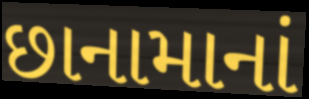
છાનામાનાં